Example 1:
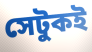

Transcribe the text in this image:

সেটুকই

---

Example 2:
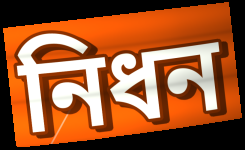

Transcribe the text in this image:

নিধন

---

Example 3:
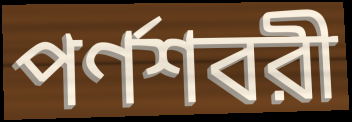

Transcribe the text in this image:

পর্ণশবরী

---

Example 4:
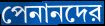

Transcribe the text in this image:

পেনানদের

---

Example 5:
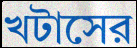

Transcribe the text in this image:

খটাসের